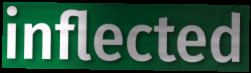
inflected